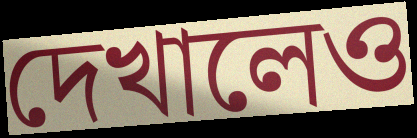
দেখালেও